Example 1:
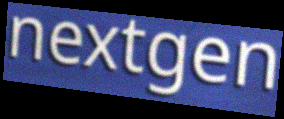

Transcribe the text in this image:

nextgen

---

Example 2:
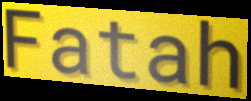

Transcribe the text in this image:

Fatah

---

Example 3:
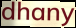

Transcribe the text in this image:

dhany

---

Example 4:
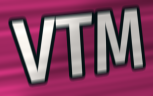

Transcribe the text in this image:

VTM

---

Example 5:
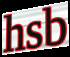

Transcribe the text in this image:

hsb